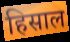
हिसाल